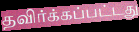
தவிர்க்கப்பட்டது